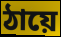
ঠায়ে